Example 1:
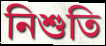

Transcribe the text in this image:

নিশুতি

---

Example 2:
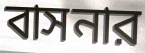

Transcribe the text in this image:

বাসনার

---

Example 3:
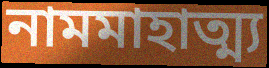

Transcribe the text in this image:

নামমাহাত্ম্য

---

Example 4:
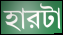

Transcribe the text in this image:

হারটা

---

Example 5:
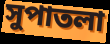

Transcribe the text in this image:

সুপাতলা